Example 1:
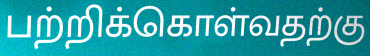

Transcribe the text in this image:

பற்றிக்கொள்வதற்கு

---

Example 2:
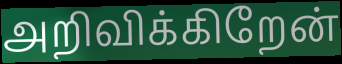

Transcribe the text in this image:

அறிவிக்கிறேன்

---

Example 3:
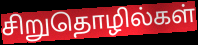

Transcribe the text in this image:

சிறுதொழில்கள்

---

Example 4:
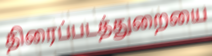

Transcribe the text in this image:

திரைப்படத்துறையை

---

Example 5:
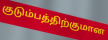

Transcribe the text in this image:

குடும்பத்திற்குமான